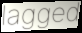
lagged